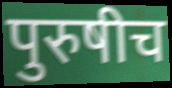
पुरुषीच